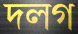
দলগ